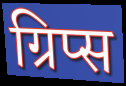
ग्रिप्स